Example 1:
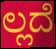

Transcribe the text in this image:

ಲ್ಲದೆ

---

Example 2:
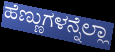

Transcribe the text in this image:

ಹೆಣ್ಣುಗಳನ್ನೆಲ್ಲಾ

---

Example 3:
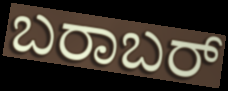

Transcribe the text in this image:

ಬರಾಬರ್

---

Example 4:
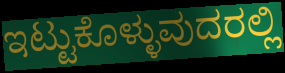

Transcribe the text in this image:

ಇಟ್ಟುಕೊಳ್ಳುವುದರಲ್ಲಿ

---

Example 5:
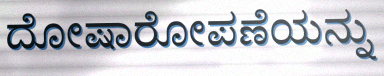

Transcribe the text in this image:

ದೋಷಾರೋಪಣೆಯನ್ನು